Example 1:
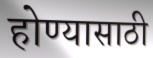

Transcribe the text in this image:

होण्यासाठी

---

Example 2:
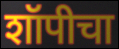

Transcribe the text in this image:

शॉपीचा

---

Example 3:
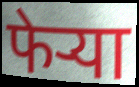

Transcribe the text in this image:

फेर्‍या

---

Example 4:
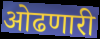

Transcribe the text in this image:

ओढणारी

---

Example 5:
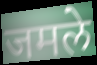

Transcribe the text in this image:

जमले